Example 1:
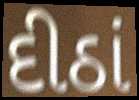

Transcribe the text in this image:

દીઠાં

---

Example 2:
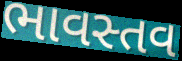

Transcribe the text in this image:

ભાવસ્તવ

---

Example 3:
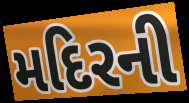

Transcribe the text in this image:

મદિરની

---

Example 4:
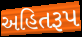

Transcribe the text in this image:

અહિતરૂપ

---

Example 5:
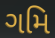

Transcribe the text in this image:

ગમિ